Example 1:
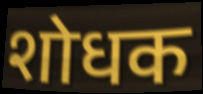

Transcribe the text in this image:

शोधक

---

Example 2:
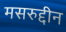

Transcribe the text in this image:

मसरुद्दीन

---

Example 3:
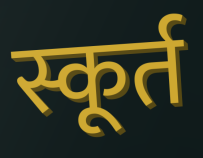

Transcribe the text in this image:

स्कूर्त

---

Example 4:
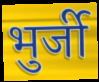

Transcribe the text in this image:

भुर्जी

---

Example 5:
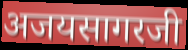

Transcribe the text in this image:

अजयसागरजी